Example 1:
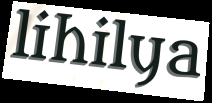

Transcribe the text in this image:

lihilya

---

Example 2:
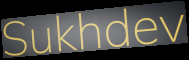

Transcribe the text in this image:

Sukhdev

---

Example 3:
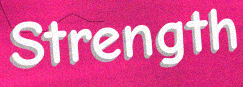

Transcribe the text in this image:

Strength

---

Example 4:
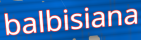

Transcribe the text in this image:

balbisiana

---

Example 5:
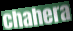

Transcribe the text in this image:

chahera